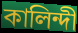
কালিন্দী